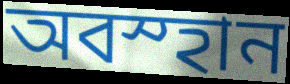
অবস্হান